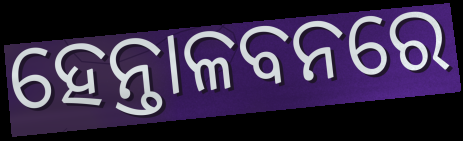
ହେନ୍ତାଳବନରେ